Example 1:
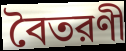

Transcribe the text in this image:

বৈতরণী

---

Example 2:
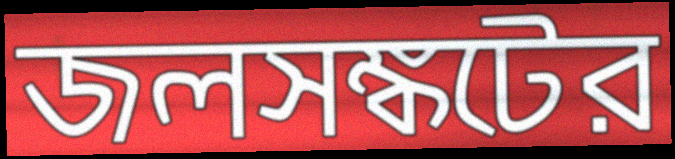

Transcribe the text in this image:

জলসঙ্কটের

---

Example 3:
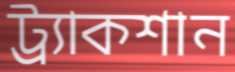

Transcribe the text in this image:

ট্র্যাকশান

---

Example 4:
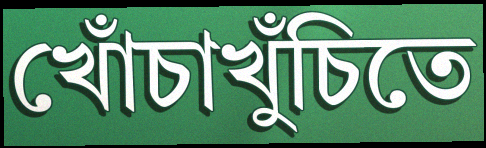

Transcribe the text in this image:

খোঁচাখুঁচিতে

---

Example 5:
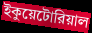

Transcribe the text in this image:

ইকুয়েটোরিয়াল